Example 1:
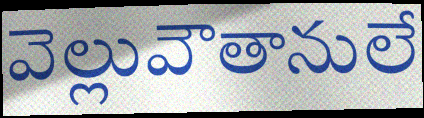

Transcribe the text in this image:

వెల్లువౌతానులే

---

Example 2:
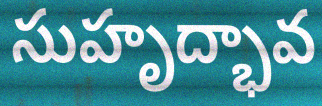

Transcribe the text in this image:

సుహృద్భావ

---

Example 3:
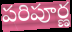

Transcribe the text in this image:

పరిపూర్ణ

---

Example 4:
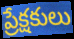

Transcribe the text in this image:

ప్రేక్షకులు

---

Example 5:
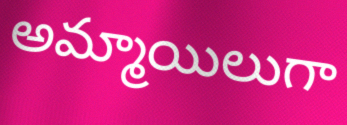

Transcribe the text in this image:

అమ్మాయిలుగా